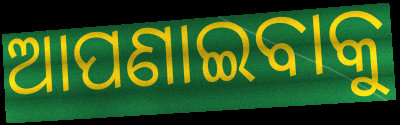
ଆପଣାଇବାକୁ